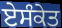
ਏਸੰਕੇਤ